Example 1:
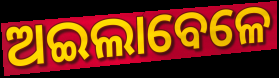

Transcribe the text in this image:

ଅଇଲାବେଳେ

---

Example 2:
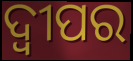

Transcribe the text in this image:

ଦ୍ଵୀପର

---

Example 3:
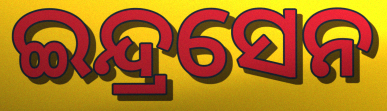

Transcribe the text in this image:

ଇନ୍ଦ୍ରସେନ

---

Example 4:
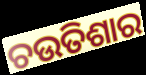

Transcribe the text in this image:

ଚଉତିଶାର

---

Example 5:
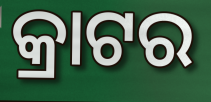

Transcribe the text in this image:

କ୍ରାଟର